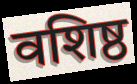
वशिष्ठ